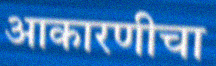
आकारणीचा